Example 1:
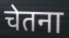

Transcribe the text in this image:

चेतना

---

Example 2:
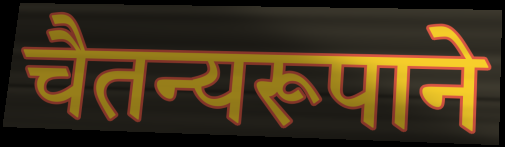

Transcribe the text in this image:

चैतन्यरूपाने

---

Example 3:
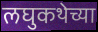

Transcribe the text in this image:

लघुकथेच्या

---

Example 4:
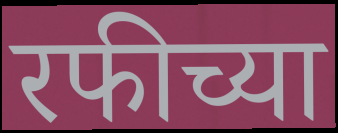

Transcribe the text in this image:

रफीच्या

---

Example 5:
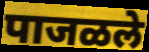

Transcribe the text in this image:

पाजळले